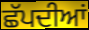
ਛੱਪਦੀਆਂ